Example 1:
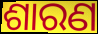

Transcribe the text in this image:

ଶାରଣ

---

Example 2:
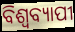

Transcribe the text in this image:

ବିଶ୍ୱବ୍ୟାପୀ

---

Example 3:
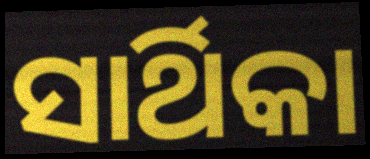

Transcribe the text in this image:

ସାର୍ଥିକା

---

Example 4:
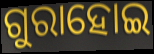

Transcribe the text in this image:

ଗୁରାହୋଇ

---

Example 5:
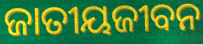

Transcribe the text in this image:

ଜାତୀୟଜୀବନ